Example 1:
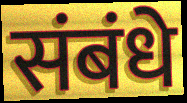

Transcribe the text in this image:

संबंधे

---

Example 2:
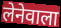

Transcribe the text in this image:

लेनेवाला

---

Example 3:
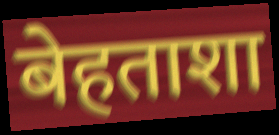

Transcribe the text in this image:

बेहताशा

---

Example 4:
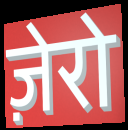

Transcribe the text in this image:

ज़ेरो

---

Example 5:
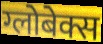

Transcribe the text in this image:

ग्लोबेक्स